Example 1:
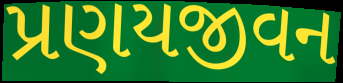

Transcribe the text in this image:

પ્રણયજીવન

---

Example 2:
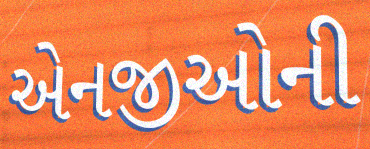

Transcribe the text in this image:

એનજીઓની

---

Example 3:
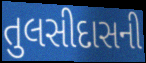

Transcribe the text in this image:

તુલસીદાસની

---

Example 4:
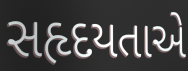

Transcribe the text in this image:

સહૃદયતાએ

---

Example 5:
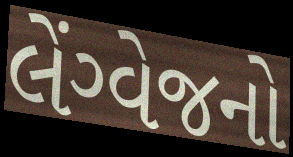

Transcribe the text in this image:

લેંગ્વેજનો